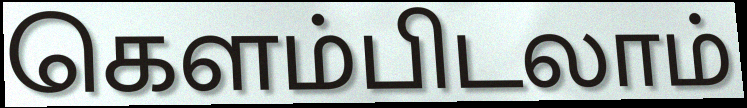
கெளம்பிடலாம்